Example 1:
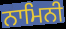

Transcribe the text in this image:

ਨਾਮਿਨੀ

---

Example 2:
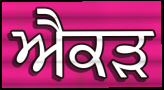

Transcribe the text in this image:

ਐਕੜ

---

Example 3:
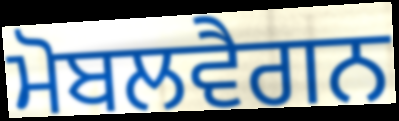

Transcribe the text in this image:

ਮੋਬਲਵੈਗਨ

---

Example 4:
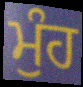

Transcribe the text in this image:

ਮੁੰਹ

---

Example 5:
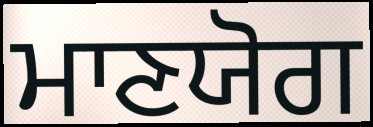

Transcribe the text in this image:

ਮਾਣਯੋਗ